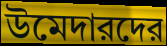
উমেদারদের